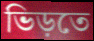
ভিড়তে